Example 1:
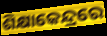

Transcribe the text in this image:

ଶିକ୍ଷାକେନ୍ଦ୍ରରେ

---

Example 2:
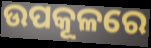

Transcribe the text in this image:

ଉପକୂଳରେ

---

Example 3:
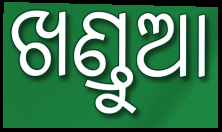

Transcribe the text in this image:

ଖଣ୍ଡୁଆ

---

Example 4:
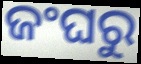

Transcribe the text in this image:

ଜଂଘରୁ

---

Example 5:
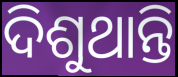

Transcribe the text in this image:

ଦିଶୁଥାନ୍ତି